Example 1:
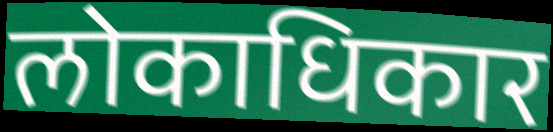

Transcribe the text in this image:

लोकाधिकार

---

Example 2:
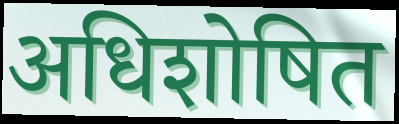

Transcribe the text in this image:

अधिशोषित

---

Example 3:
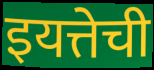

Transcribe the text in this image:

इयत्तेची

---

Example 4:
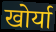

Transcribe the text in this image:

खोर्या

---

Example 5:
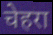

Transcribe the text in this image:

चेहरा